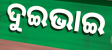
ଦୁଇଭାଇ